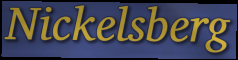
Nickelsberg